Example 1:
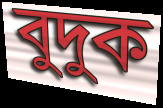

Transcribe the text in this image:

বুদুক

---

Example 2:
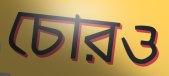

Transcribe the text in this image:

চোরও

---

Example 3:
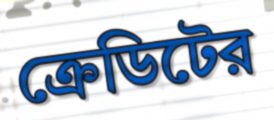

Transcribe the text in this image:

ক্রেডিটের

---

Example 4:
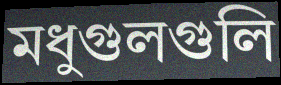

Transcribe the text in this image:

মধুগুলগুলি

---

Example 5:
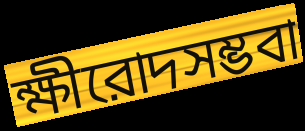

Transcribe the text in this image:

ক্ষীরোদসম্ভবা